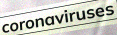
coronaviruses